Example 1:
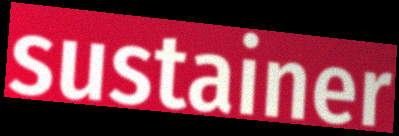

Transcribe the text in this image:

sustainer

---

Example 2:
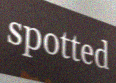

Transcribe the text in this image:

spotted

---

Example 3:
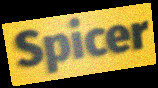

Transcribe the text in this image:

Spicer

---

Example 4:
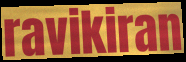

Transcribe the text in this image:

ravikiran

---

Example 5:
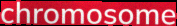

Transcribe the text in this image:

chromosome